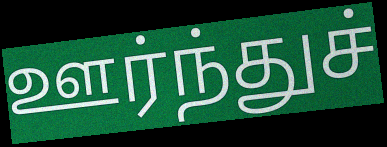
ஊர்ந்துச்